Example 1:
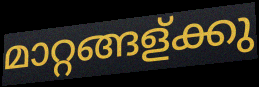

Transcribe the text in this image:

മാറ്റങ്ങള്ക്കു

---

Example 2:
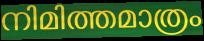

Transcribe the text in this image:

നിമിത്തമാത്രം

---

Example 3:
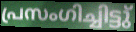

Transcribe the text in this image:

പ്രസംഗിച്ചിട്ടു്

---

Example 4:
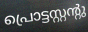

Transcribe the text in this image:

പ്രൊട്ടസ്റ്റന്റു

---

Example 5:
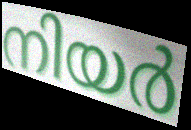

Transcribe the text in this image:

നിയർ